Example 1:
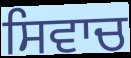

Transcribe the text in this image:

ਸਿਵਾਚ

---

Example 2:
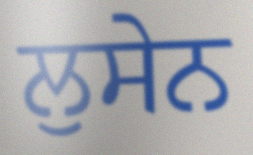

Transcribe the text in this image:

ਲੁਸੇਨ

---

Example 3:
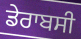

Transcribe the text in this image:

ਡੇਰਾਬਸੀ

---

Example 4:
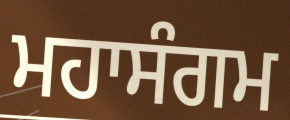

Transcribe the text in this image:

ਮਹਾਸੰਗਮ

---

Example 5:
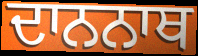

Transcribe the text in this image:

ਦਾਨਨਾਥ